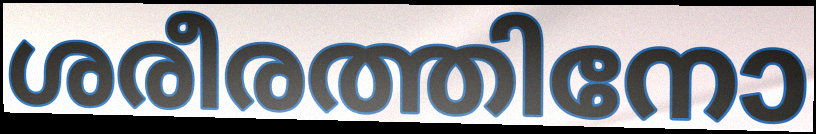
ശരീരത്തിനോ